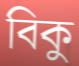
বিকু